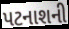
પટનાશની